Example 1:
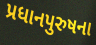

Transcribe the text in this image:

પ્રધાનપુરુષના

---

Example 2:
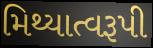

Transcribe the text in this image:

મિથ્યાત્વરૂપી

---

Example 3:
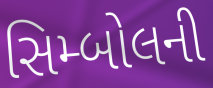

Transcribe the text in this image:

સિમ્બોલની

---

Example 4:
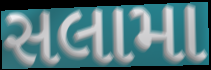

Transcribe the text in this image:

સલામા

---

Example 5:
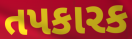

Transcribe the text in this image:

તપકારક